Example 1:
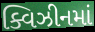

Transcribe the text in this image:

ક્વિઝીનમાં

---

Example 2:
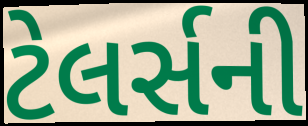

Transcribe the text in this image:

ટેલર્સની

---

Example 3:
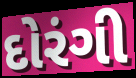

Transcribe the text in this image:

દોરંગી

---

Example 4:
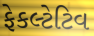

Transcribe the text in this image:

ફેકલ્ટેટિવ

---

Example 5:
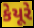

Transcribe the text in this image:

કેયૂરે